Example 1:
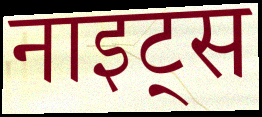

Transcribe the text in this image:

नाइट्‌स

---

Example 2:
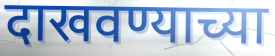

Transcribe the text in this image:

दाखवण्याच्या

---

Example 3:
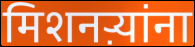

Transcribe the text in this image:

मिशनऱ्‍यांना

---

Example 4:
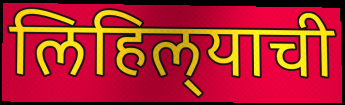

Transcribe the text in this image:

लिहिल्याची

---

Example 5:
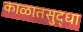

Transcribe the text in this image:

काळातसुद्धा